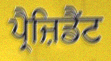
ਪ੍ਰੈਜ਼ਿਡੈਂਟ